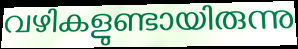
വഴികളുണ്ടായിരുന്നു